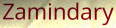
Zamindary